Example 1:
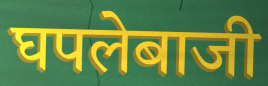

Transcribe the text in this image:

घपलेबाजी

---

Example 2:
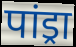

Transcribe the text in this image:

पांड्रा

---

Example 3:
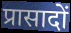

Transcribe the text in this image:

प्रासादों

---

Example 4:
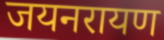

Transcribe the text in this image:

जयनरायण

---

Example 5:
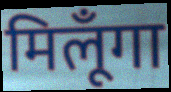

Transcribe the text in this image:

मिलूँगा